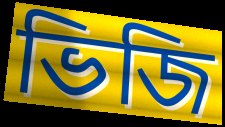
ভিজি